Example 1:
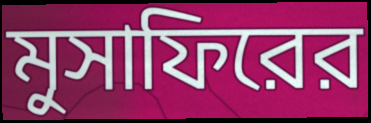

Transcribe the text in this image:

মুসাফিরের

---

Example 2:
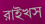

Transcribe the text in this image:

রাইখস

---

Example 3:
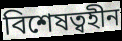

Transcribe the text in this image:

বিশেষত্বহীন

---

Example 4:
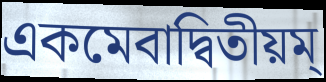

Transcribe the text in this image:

একমেবাদ্বিতীয়ম্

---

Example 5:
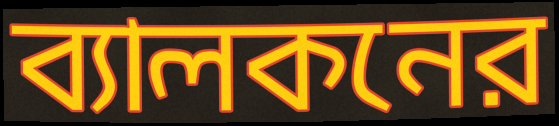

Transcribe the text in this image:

ব্যালকনের